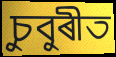
চুবুৰীত